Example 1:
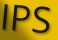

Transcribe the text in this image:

IPS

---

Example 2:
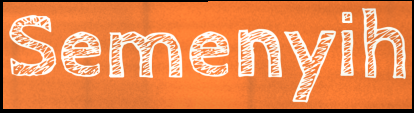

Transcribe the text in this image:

Semenyih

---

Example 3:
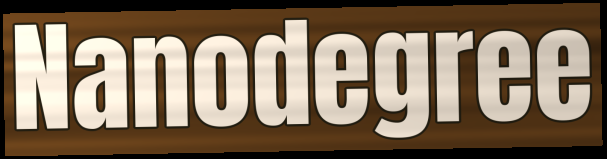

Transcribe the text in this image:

Nanodegree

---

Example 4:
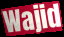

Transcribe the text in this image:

Wajid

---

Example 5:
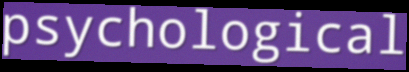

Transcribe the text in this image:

psychological